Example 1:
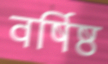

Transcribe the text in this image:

वर्षिष्ठ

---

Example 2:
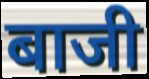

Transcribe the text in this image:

बाजी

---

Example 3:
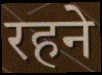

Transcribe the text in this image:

रहने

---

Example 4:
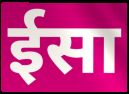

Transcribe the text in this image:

ईसा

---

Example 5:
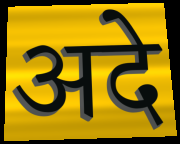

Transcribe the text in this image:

अदे